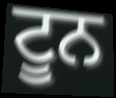
ਟੂਨ